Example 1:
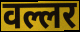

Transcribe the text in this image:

वल्लर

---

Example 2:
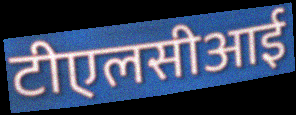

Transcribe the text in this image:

टीएलसीआई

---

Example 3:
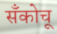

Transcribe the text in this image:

सँकोचू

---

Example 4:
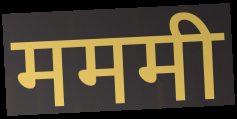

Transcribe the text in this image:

मममी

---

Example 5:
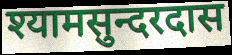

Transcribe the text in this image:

श्यामसुन्दरदास